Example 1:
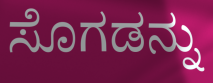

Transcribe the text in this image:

ಸೊಗಡನ್ನು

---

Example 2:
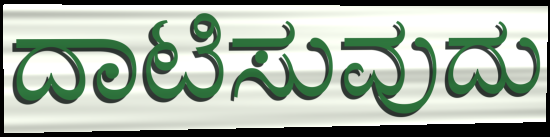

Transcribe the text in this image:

ದಾಟಿಸುವುದು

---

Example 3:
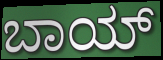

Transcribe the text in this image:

ಬಾಯ್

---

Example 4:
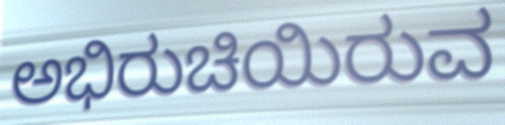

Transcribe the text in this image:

ಅಭಿರುಚಿಯಿರುವ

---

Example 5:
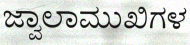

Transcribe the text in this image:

ಜ್ವಾಲಾಮುಖಿಗಳ